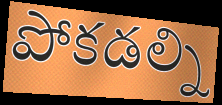
పోకడల్ని